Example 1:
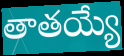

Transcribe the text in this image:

తాతయ్యే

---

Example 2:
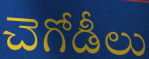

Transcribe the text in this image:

చెగోడీలు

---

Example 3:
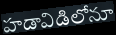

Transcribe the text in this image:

హడావిడిలోనూ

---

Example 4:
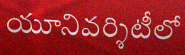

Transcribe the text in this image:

యూనివర్శిటీలో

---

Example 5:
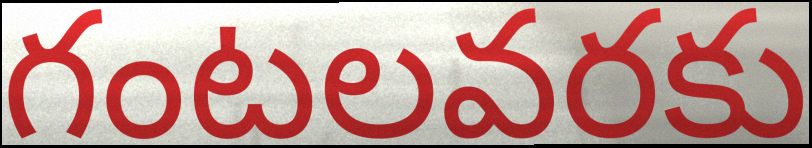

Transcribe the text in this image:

గంటలవరకు